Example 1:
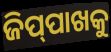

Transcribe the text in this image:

ଜିପ୍‌ପାଖକୁ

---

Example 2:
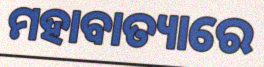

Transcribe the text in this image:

ମହାବାତ୍ୟାରେ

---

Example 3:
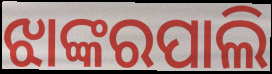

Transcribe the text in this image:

ଝାଙ୍କରପାଲି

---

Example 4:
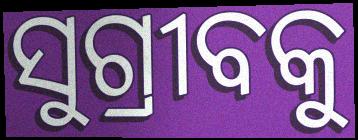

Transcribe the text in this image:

ସୁଗ୍ରୀବକୁ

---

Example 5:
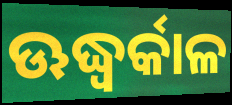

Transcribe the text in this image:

ଊଦ୍ଧ୍ୱର୍କାଳ